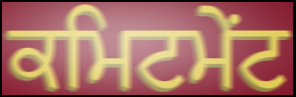
ਕਮਿਟਮੇਂਟ